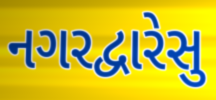
નગરદ્વારેસુ